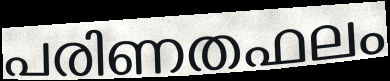
പരിണതഫലം